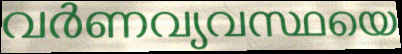
വർണവ്യവസ്ഥയെ